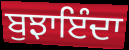
ਬੁਝਾਇੰਦਾ